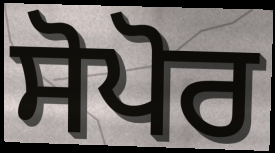
ਸੋਪੋਰ